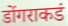
डोंगराकडं